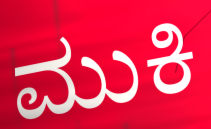
ಮುಕಿ